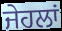
ਜੇਹਲਾਂ